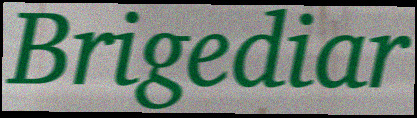
Brigediar